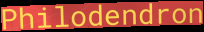
Philodendron